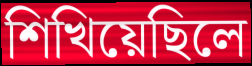
শিখিয়েছিলে